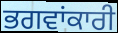
ਭਗਵਾਂਕਾਰੀ